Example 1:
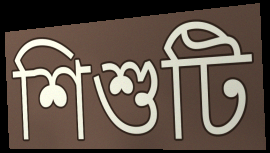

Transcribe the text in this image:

শিশুটি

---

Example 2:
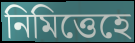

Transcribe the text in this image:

নিমিত্তেহে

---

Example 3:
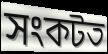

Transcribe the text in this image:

সংকটত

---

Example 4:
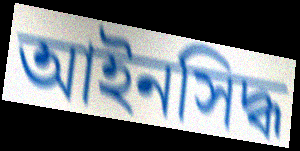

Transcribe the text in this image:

আইনসিদ্ধ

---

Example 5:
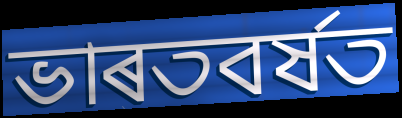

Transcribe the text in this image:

ভাৰতবৰ্ষত